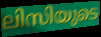
ലിസിയുടെ